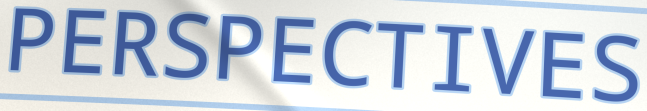
PERSPECTIVES